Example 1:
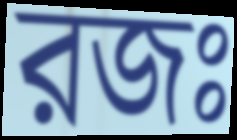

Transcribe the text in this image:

রজঃ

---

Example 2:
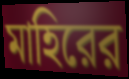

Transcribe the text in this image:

মাহিরের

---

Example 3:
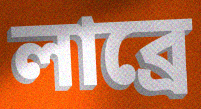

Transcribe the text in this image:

লাব্রে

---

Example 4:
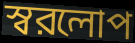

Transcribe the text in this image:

স্বরলোপ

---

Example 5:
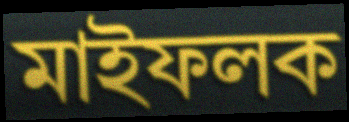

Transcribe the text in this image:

মাইফলক